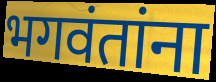
भगवंतांना